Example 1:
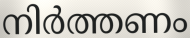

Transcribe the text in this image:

നിർത്തണം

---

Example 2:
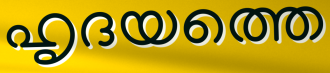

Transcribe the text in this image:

ഹൃദയത്തെ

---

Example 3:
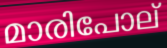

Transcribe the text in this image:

മാരിപോല്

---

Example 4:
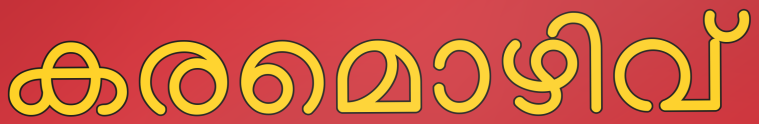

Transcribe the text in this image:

കരമൊഴിവ്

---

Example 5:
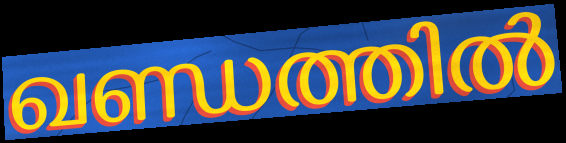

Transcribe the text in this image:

ഖണ്ഡത്തിൽ